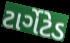
ટાર્ગેટેડ